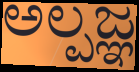
ಅಲ್ಪಜ್ಞ